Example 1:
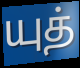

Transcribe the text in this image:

யுத்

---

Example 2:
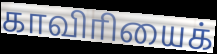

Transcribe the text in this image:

காவிரியைக்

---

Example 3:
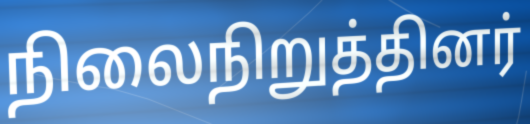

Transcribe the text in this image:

நிலைநிறுத்தினர்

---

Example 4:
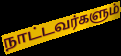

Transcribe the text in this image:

நாட்டவர்களும்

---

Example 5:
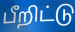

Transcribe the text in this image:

பீறிட்டு